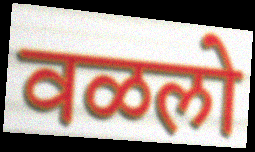
वळलो